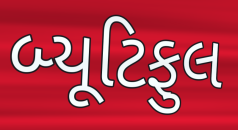
બ્યૂટિફુલ